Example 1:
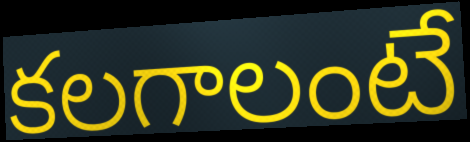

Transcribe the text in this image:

కలగాలంటే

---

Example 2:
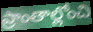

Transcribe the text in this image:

ప్రాంతాల్లోంచి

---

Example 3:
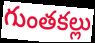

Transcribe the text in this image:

గుంతకల్లు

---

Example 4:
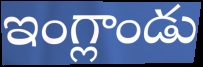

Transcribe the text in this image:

ఇంగ్లాండు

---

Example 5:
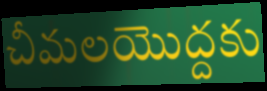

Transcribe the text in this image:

చీమలయొద్దకు